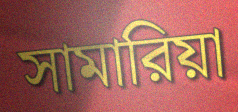
সামারিয়া